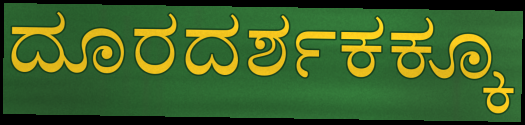
ದೂರದರ್ಶಕಕ್ಕೂ